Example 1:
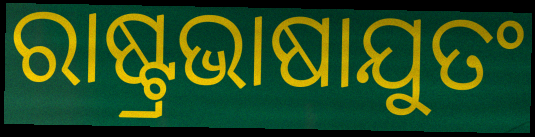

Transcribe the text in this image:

ରାଷ୍ଟ୍ରଭାଷାଯୁତଂ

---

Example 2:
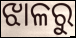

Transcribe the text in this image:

ଝାଳରୁ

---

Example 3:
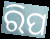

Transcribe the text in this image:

ରିପ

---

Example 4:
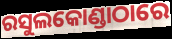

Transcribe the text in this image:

ରସୁଲକୋଣ୍ଡାଠାରେ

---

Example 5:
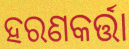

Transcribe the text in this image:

ହରଣକର୍ତ୍ତା